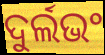
ଦୁର୍ଲଭଂ